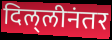
दिल्लीनंतर